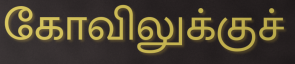
கோவிலுக்குச்